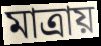
মাত্রায়